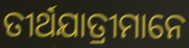
ତୀର୍ଥଯାତ୍ରୀମାନେ